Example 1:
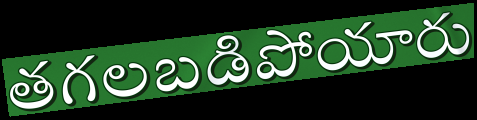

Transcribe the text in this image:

తగలబడిపోయారు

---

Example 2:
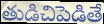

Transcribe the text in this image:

తుడిచిపెడితే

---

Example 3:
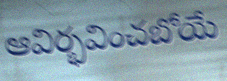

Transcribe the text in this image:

ఆవిర్భవించబోయే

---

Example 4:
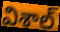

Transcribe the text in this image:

విశాల్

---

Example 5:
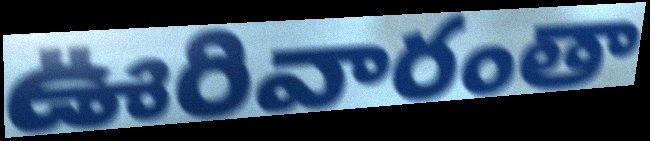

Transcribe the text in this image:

ఊరివారంతా